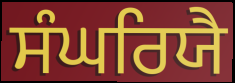
ਸੰਘਰਿਯੈ